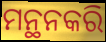
ମନ୍ଥନକରି